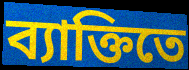
ব্যাক্তিতে